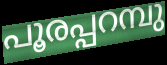
പൂരപ്പറമ്പു